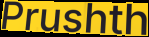
Prushth